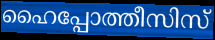
ഹൈപ്പോത്തീസിസ്